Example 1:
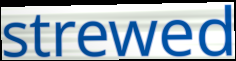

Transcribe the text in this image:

strewed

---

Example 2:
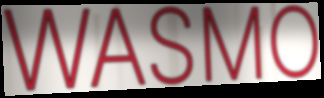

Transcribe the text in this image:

WASMO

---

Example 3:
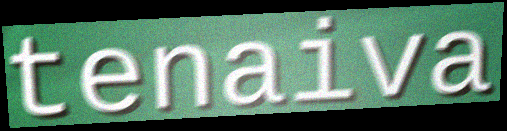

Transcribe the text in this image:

tenaiva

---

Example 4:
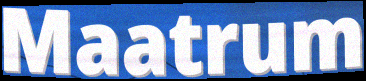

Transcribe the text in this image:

Maatrum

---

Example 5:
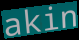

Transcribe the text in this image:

akin